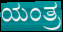
ಯಂತ್ರ